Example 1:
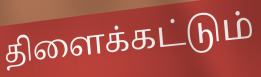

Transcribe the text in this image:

திளைக்கட்டும்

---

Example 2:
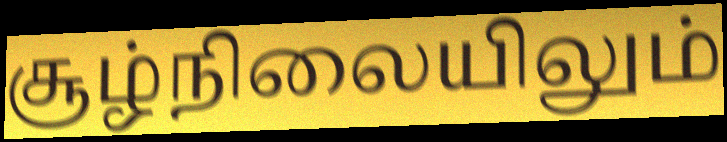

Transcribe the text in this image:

சூழ்நிலையிலும்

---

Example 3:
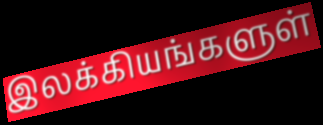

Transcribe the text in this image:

இலக்கியங்களுள்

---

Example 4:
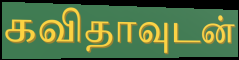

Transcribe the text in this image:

கவிதாவுடன்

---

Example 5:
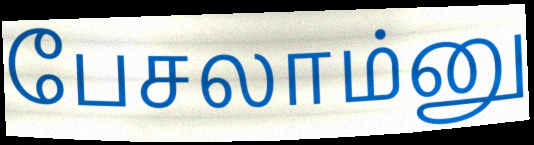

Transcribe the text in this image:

பேசலாம்னு